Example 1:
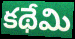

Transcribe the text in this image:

కథేమి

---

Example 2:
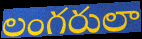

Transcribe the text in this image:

లంగరులా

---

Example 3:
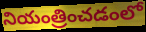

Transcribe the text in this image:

నియంత్రించడంలో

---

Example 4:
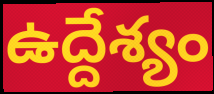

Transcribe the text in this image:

ఉద్దేశ్యం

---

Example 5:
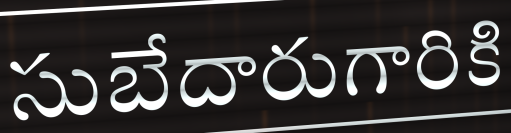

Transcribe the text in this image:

సుబేదారుగారికి